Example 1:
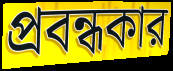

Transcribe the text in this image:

প্রবন্ধকার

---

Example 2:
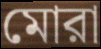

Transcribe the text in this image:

মোরা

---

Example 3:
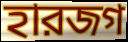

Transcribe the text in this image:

হারজগ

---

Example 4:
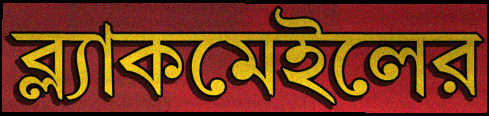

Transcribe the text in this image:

ব্ল্যাকমেইলের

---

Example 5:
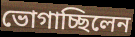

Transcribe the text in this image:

ভোগাচ্ছিলেন